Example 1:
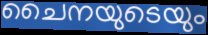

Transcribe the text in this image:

ചൈനയുടെയും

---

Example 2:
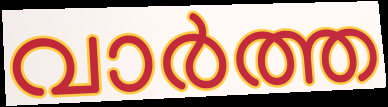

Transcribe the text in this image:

വാർത്ത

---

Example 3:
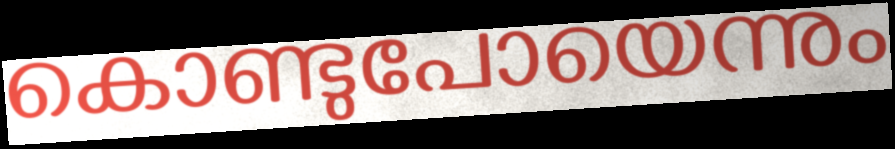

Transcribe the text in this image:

കൊണ്ടുപോയെന്നും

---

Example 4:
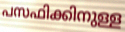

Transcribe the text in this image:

പസഫിക്കിനുള്ള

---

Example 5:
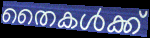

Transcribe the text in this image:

തൈകൾക്ക്